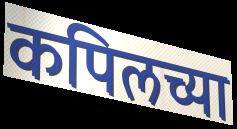
कपिलच्या